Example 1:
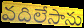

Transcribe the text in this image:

వదిలేసాను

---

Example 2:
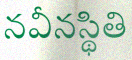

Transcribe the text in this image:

నవీనస్థితి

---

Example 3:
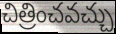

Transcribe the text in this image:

చిత్రించవచ్చు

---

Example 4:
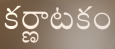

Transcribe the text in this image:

కర్ణాటకం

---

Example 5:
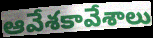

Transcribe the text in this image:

ఆవేశకావేశాలు